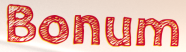
Bonum